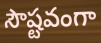
సౌష్టవంగా